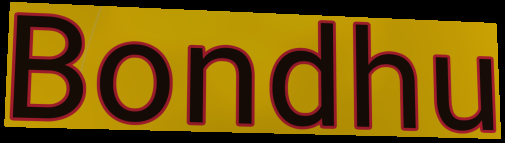
Bondhu